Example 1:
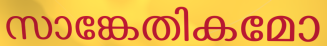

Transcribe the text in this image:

സാങ്കേതികമോ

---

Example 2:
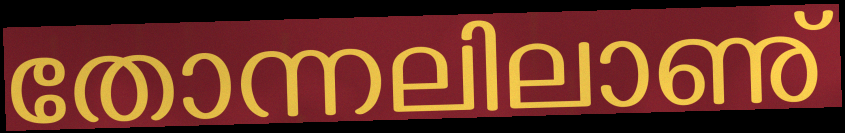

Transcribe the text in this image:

തോന്നലിലാണു്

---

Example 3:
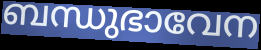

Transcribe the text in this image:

ബന്ധുഭാവേന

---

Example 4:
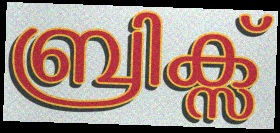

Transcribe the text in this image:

ബ്രിക്സ്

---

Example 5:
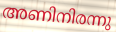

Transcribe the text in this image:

അണിനിരന്നു